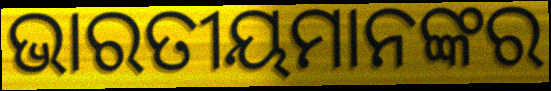
ଭାରତୀୟମାନଙ୍କର